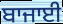
ਬਾਜਾਈ